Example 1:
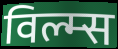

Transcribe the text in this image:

विल्म्स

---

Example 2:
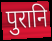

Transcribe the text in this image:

पुरानि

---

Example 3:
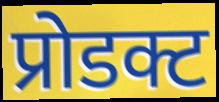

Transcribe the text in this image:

प्रोडक्ट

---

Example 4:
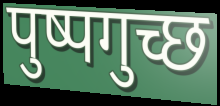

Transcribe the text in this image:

पुष्पगुच्छ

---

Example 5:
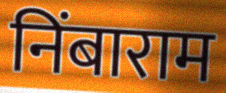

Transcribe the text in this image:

निंबाराम